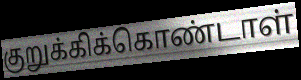
குறுக்கிக்கொண்டாள்